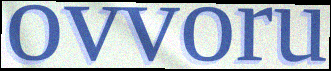
ovvoru